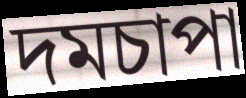
দমচাপা